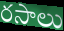
రసాలు